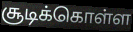
சூடிக்கொள்ள